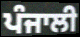
ਪੰਜਾਲੀ